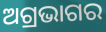
ଅଗ୍ରଭାଗର